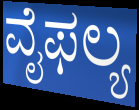
ವೈಫಲ್ಯ